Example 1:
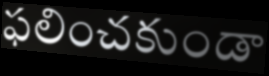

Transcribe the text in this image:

ఫలించకుండా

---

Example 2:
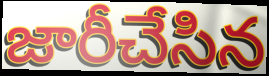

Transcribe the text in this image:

జారీచేసిన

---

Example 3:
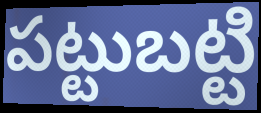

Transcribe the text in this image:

పట్టుబట్టి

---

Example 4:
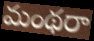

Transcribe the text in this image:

మంథరా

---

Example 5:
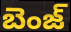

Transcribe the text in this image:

బెంజ్